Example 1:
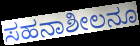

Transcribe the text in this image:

ಸಹನಾಶೀಲನೂ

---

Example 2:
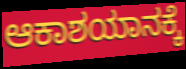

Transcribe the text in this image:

ಆಕಾಶಯಾನಕ್ಕೆ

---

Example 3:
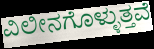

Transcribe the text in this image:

ವಿಲೀನಗೊಳ್ಳುತ್ತವೆ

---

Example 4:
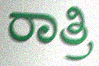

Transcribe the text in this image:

ರಾತ್ರಿ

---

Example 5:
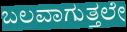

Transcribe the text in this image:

ಬಲವಾಗುತ್ತಲೇ